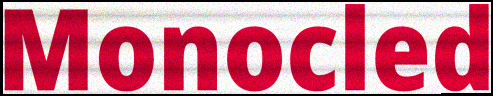
Monocled